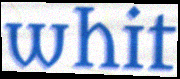
whit